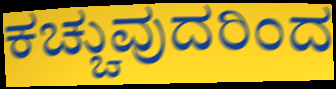
ಕಚ್ಚುವುದರಿಂದ